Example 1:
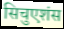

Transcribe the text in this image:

सिचुएशंस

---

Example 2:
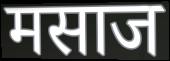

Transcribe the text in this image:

मसाज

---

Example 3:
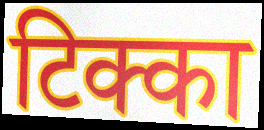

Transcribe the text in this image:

टिक्का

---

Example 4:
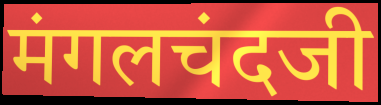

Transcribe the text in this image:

मंगलचंदजी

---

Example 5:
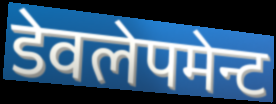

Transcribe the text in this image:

डेवलेपमेन्ट